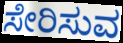
ಸೇರಿಸುವ